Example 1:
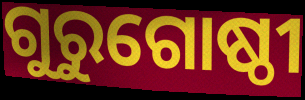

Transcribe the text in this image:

ଗୁରୁଗୋଷ୍ଠୀ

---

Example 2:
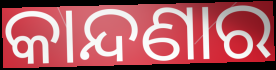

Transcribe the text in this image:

କାନ୍ଦଣାର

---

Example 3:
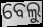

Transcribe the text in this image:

ବେଲୁ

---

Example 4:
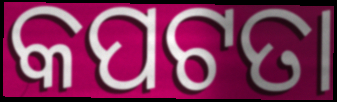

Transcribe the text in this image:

କପଟତା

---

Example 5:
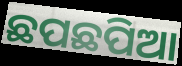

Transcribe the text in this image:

ଛପଛପିଆ